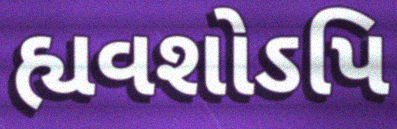
હ્યવશોઽપિ